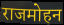
राजमोहन